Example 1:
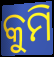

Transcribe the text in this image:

କୁମି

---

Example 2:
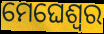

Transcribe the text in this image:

ମେଘେଶ୍ୱର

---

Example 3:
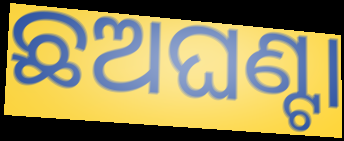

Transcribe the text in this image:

ଛଅଘଣ୍ଟା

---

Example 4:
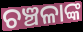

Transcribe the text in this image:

ଚଞ୍ଚଳାଙ୍କ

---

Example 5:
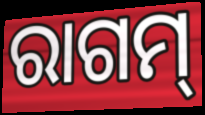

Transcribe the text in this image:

ରାଗମ୍